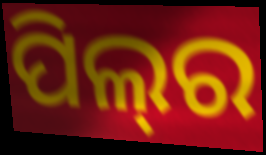
ପିଲ୍‌ର